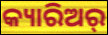
କ୍ୟାରିଅର୍